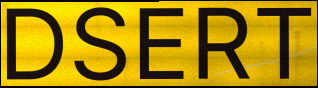
DSERT